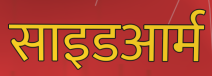
साइडआर्म